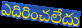
ఎదిరించలేదు